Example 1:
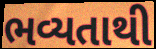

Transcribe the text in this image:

ભવ્યતાથી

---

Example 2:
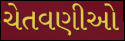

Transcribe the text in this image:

ચેતવણીઓ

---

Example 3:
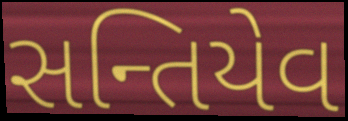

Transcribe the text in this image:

સન્તિયેવ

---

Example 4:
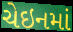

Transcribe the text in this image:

ચેઇનમાં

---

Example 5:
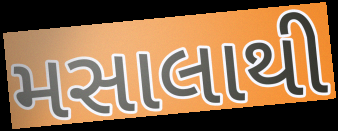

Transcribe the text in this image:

મસાલાથી